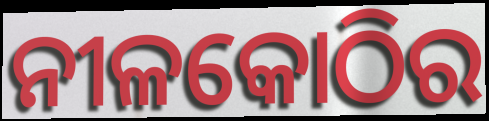
ନୀଳକୋଠିର